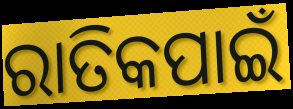
ରାତିକପାଇଁ